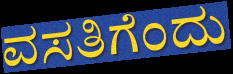
ವಸತಿಗೆಂದು